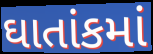
ઘાતાંકમાં